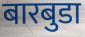
बारबुडा